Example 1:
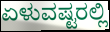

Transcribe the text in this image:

ಏಳುವಷ್ಟರಲ್ಲಿ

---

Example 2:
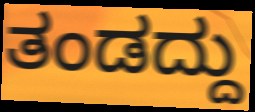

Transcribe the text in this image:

ತಂಡದ್ದು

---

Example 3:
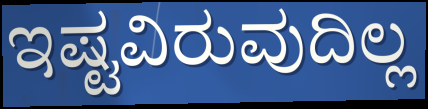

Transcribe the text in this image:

ಇಷ್ಟವಿರುವುದಿಲ್ಲ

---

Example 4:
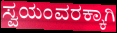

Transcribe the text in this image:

ಸ್ವಯಂವರಕ್ಕಾಗಿ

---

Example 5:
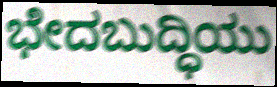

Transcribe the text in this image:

ಭೇದಬುದ್ಧಿಯು